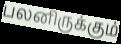
பலனிருக்கும்